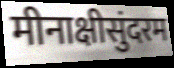
मीनाक्षीसुंदरम